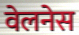
वेलनेस